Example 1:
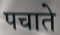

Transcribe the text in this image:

पचाते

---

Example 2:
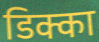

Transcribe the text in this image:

डिक्का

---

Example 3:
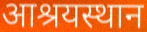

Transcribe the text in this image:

आश्रयस्थान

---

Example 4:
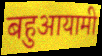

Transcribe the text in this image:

बहुआयामी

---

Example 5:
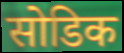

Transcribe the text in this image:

सोडिक